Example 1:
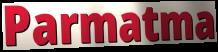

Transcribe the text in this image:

Parmatma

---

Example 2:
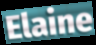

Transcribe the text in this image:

Elaine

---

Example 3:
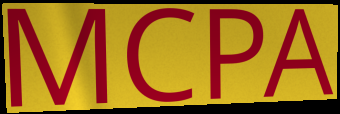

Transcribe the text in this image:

MCPA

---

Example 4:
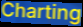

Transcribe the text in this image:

Charting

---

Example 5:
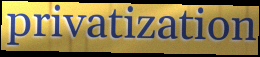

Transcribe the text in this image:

privatization